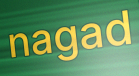
nagad